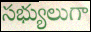
సభ్యులుగా